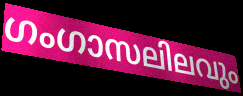
ഗംഗാസലിലവും